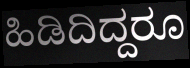
ಹಿಡಿದಿದ್ದರೂ